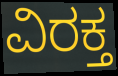
ವಿರಕ್ತ